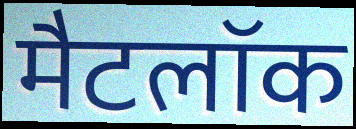
मैटलॉक